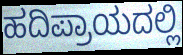
ಹದಿಪ್ರಾಯದಲ್ಲಿ